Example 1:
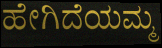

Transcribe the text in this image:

ಹೇಗಿದೆಯಮ್ಮ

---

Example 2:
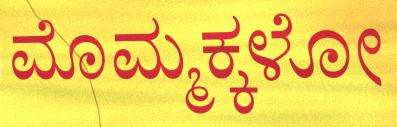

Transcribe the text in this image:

ಮೊಮ್ಮಕ್ಕಳೋ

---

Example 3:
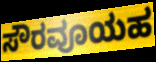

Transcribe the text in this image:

ಸೌರವೂಯಹ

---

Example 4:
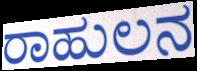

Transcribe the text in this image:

ರಾಹುಲನ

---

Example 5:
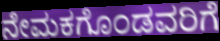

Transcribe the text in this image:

ನೇಮಕಗೊಂಡವರಿಗೆ